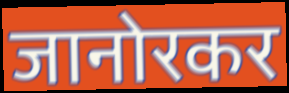
जानोरकर